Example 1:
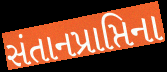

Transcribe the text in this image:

સંતાનપ્રાપ્તિના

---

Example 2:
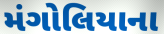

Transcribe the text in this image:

મંગોલિયાના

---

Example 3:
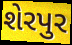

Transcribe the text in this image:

શેરપુર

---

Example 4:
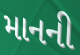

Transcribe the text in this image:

માનની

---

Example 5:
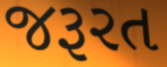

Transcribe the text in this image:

જરૂરત